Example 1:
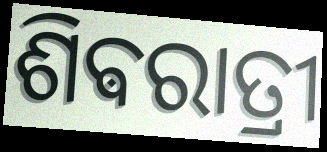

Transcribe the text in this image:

ଶିଵରାତ୍ରୀ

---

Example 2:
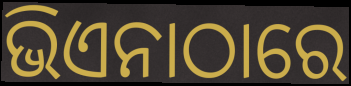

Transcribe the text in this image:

ଭିଏନାଠାରେ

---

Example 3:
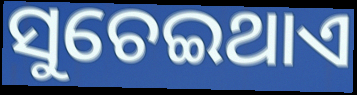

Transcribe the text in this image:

ସୁଚେଇଥାଏ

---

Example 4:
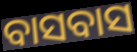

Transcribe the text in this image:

ବାସବାସ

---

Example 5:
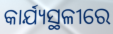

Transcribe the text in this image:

କାର୍ଯ୍ୟସ୍ଥଳୀରେ